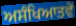
ਅਸੰਖਿਆਤਵੇਂ